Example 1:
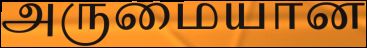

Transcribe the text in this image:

அருமையான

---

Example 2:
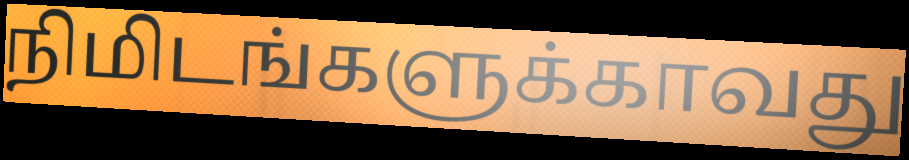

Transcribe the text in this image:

நிமிடங்களுக்காவது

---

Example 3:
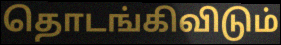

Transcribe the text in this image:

தொடங்கிவிடும்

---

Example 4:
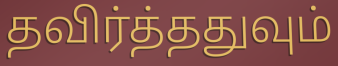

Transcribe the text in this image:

தவிர்த்ததுவும்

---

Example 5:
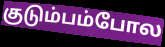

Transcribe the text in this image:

குடும்பம்போல